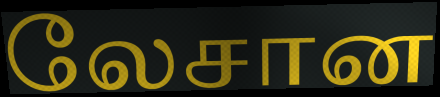
லேசான